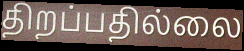
திறப்பதில்லை